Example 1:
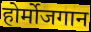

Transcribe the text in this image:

होर्मोजगान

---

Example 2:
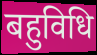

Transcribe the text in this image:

बहुविधि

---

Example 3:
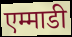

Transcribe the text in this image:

एम्माडी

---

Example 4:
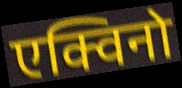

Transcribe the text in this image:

एक्विनो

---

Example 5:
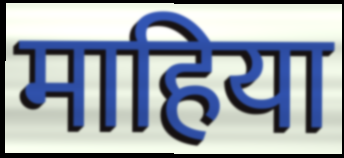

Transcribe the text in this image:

माहिया